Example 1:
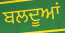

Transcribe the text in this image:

ਬਲਦੂਆਂ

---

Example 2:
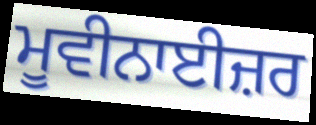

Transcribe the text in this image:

ਮੂਵੀਨਾਈਜ਼ਰ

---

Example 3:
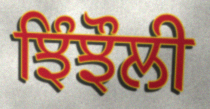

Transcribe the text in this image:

ਝਿੰਝੌਲੀ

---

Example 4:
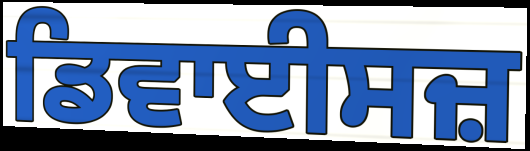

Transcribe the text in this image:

ਡਿਵਾਈਸਜ਼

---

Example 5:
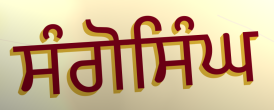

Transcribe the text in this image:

ਸੰਗੋਸਿੰਘ